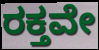
ರಕ್ತವೇ